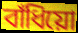
বাঁধিয়ো